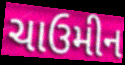
ચાઉમીન